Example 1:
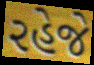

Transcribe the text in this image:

રહેજે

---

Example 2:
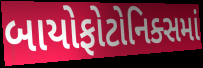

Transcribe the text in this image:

બાયોફોટોનિક્સમાં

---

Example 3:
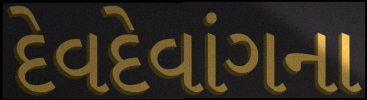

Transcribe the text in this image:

દેવદેવાંગના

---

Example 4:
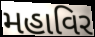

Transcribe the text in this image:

મહાવિર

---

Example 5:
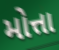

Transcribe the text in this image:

મોત્તા